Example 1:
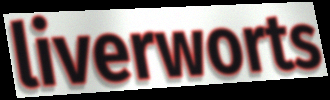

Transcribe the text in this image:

liverworts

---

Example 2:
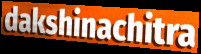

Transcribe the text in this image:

dakshinachitra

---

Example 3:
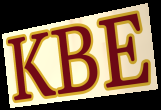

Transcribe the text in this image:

KBE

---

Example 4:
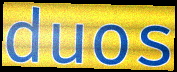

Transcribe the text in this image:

duos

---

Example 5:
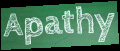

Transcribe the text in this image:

Apathy